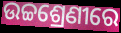
ଉଚ୍ଚଶ୍ରେଣୀରେ